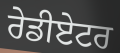
ਰੇਡੀਏਟਰ